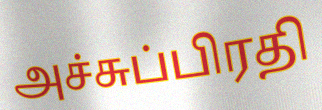
அச்சுப்பிரதி